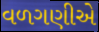
વળગણીએ